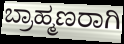
ಬ್ರಾಹ್ಮಣರಾಗಿ